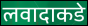
लवादाकडे